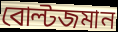
বোল্টজমান